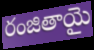
రంజితాయై